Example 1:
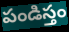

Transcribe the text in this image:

పండిస్తం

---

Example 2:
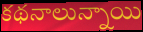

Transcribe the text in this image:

కథనాలున్నాయి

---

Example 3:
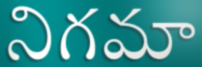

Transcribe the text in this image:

నిగమా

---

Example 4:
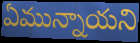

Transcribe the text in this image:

ఏమున్నాయని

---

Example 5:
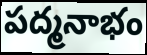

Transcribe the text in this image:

పద్మనాభం